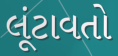
લૂંટાવતો